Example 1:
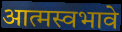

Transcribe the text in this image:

आत्मस्वभावे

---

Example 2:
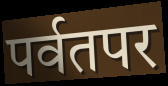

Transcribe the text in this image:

पर्वतपर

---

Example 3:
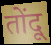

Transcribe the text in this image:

तोंदू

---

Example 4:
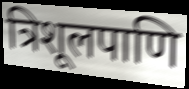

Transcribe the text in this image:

त्रिशूलपाणि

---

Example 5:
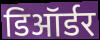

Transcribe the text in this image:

डिऑर्डर